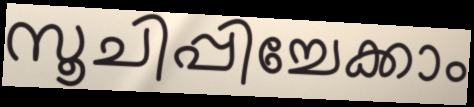
സൂചിപ്പിച്ചേക്കാം